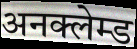
अनक्लेम्ड